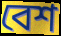
বেশ